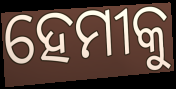
ହେମୀକୁ